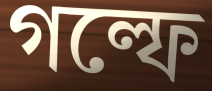
গল্ফে